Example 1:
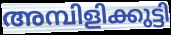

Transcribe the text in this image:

അമ്പിളിക്കുട്ടി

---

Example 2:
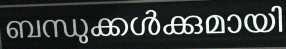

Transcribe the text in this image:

ബന്ധുക്കൾക്കുമായി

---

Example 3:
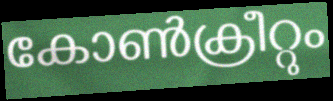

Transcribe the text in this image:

കോൺക്രീറ്റും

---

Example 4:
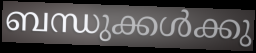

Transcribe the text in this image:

ബന്ധുക്കൾക്കു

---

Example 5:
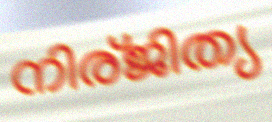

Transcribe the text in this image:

നിര്ജിത്യ